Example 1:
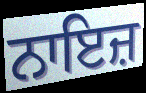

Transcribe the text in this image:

ਨਾਇਜ਼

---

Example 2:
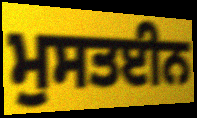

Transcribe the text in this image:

ਮੁਸਤਈਨ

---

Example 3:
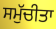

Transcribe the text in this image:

ਸਮੁੱਚੀਤਾ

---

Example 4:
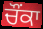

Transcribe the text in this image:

ਚੌਂਕਾ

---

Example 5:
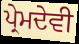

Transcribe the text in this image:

ਪ੍ਰੇਮਦੇਵੀ